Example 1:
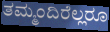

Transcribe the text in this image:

ತಮ್ಮಂದಿರೆಲ್ಲರೂ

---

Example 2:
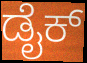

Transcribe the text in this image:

ಡೈಕ್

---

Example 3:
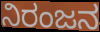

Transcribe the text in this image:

ನಿರಂಜನ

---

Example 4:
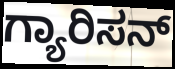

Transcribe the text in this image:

ಗ್ಯಾರಿಸನ್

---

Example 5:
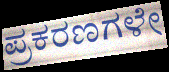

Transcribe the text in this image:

ಪ್ರಕರಣಗಳೇ